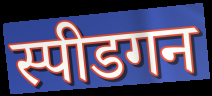
स्पीडगन